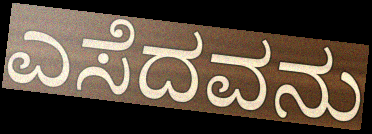
ಎಸೆದವನು